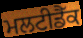
ਮਲਟੀਡੈੱਕ